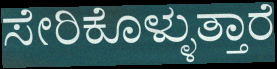
ಸೇರಿಕೊಳ್ಳುತ್ತಾರೆ